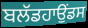
ਬਲੱਡਹਾਉਂਡਸ